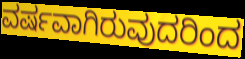
ವರ್ಷವಾಗಿರುವುದರಿಂದ